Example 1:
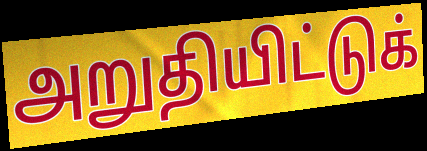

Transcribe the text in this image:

அறுதியிட்டுக்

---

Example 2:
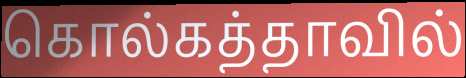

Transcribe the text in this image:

கொல்கத்தாவில்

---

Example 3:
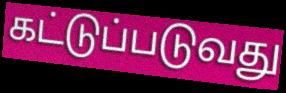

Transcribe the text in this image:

கட்டுப்படுவது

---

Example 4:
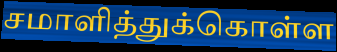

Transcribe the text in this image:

சமாளித்துக்கொள்ள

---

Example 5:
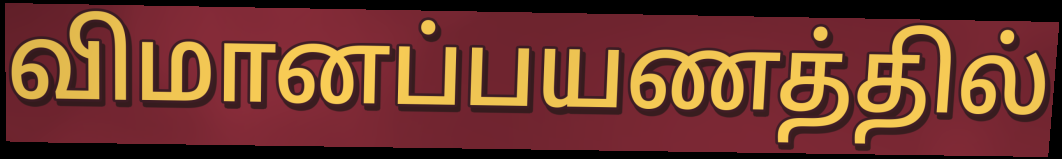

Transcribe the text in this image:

விமானப்பயணத்தில்